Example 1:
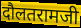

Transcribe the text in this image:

दौलतरामजी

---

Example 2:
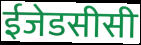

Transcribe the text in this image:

ईजेडसीसी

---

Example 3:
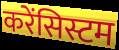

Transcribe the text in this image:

करेंसिस्टम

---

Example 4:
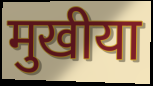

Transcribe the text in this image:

मुखीया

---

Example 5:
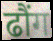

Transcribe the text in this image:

ढौंग